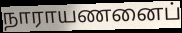
நாராயணனைப்